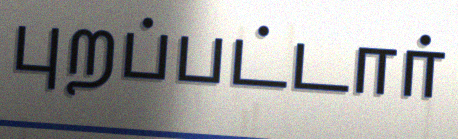
புறப்பட்டார்